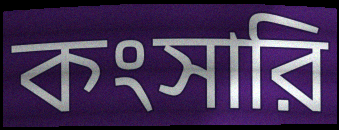
কংসারি